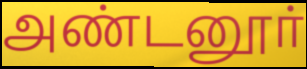
அண்டனூர்